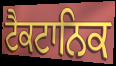
ਟੈਕਟਾਨਿਕ